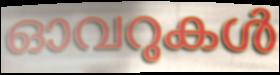
ഓവറുകൾ